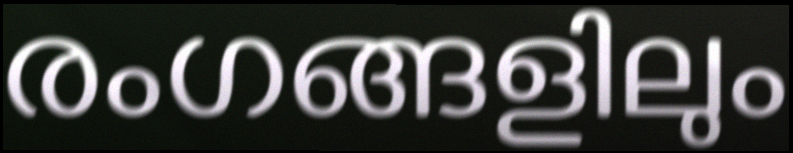
രംഗങ്ങളിലും